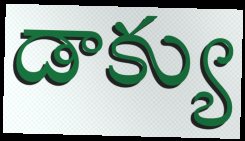
డాక్యు